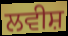
ਲਵੀਸ਼